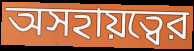
অসহায়ত্বের